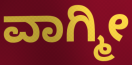
ವಾಗ್ಮೀ